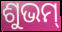
ଶୁଭମ୍